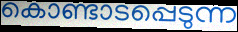
കൊണ്ടാടപ്പെടുന്ന